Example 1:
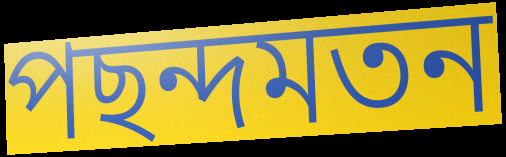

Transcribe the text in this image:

পছন্দমতন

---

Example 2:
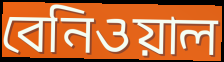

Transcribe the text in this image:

বেনিওয়াল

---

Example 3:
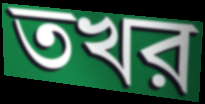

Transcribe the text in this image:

তখর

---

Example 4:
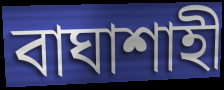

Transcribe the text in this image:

বাঘাশাহী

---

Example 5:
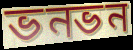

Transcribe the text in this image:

ভনভন